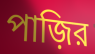
পাজ়ির